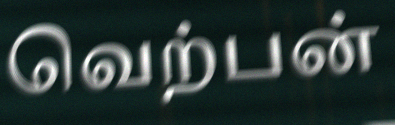
வெற்பன்